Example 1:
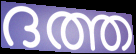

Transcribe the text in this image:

ദത്ത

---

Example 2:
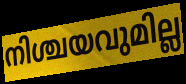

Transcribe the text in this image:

നിശ്ചയവുമില്ല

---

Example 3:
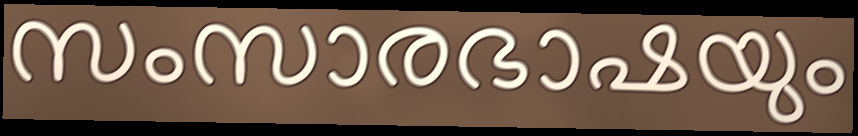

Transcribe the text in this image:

സംസാരഭാഷയും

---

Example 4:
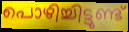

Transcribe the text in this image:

പൊഴിച്ചിട്ടുണ്ട്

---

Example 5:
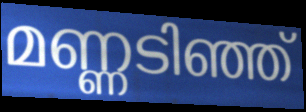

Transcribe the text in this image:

മണ്ണടിഞ്ഞ്